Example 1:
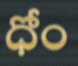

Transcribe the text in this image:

ధోం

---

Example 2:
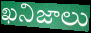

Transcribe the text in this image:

ఖనిజాలు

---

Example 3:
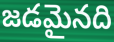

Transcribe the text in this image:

జడమైనది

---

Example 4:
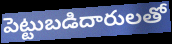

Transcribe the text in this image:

పెట్టుబడిదారులతో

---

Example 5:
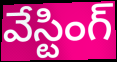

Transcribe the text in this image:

వేస్టింగ్